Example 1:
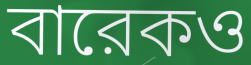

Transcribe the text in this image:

বারেকও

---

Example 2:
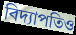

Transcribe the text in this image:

বিদ্যাপতিও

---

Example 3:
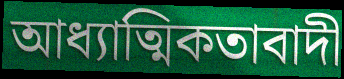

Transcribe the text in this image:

আধ্যাত্মিকতাবাদী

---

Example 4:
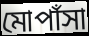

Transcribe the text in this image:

মোপাঁসা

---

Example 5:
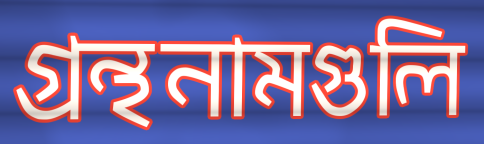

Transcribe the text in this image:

গ্রন্থনামগুলি